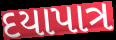
દયાપાત્ર